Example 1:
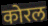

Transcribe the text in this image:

कोरल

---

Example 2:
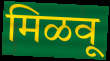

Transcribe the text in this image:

मिळवू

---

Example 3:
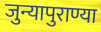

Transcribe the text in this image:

जुन्यापुराण्या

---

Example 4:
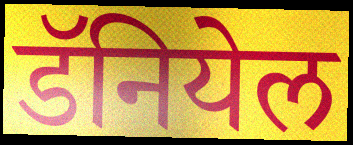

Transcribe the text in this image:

डॅनियेल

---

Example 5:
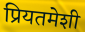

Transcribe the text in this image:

प्रियतमेशी